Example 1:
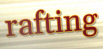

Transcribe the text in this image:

rafting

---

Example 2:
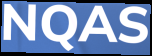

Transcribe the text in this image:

NQAS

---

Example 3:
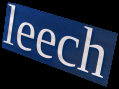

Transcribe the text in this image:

leech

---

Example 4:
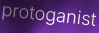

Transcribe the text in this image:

protoganist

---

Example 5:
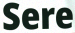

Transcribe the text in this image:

Sere